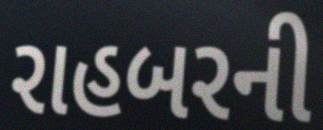
રાહબરની